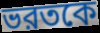
ভরতকে